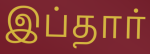
இப்தார்